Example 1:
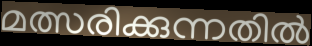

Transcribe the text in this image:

മത്സരിക്കുന്നതിൽ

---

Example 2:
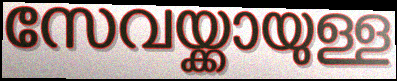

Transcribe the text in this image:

സേവയ്ക്കായുള്ള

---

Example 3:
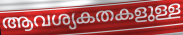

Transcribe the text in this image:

ആവശ്യകതകളുള്ള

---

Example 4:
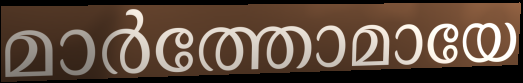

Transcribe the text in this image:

മാർത്തോമായേ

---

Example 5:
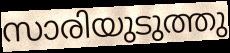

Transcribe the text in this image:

സാരിയുടുത്തു